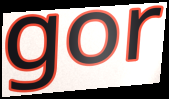
gor